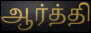
ஆர்த்தி